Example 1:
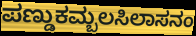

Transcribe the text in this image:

ಪಣ್ಡುಕಮ್ಬಲಸಿಲಾಸನಂ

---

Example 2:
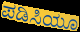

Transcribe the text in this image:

ಪಡಿಸಿಯೂ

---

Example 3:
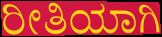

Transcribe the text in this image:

ರೀತಿಯಾಗಿ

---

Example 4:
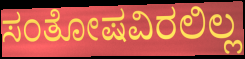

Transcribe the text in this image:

ಸಂತೋಷವಿರಲಿಲ್ಲ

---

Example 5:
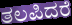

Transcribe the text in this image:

ತಲಪಿದರೆ